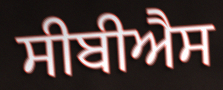
ਸੀਬੀਐਸ